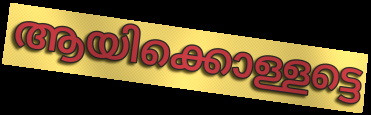
ആയിക്കൊള്ളട്ടെ